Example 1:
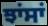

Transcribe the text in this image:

ਝਾਂਸਾਂ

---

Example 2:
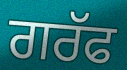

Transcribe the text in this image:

ਗਰੱਫ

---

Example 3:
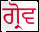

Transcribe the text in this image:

ਗ੍ਰੋਵ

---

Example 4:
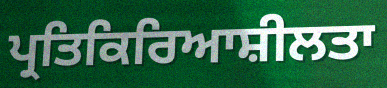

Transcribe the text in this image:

ਪ੍ਰਤਿਕਿਰਿਆਸ਼ੀਲਤਾ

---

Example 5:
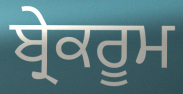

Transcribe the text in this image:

ਬ੍ਰੇਕਰੂਮ